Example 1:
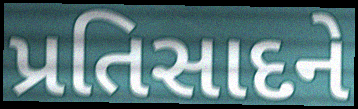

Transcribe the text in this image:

પ્રતિસાદને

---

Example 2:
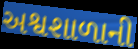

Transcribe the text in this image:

અશ્વશાળાની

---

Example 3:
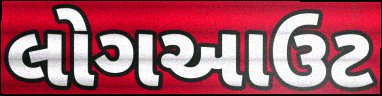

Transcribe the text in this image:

લોગઆઉટ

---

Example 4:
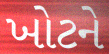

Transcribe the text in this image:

ખોટને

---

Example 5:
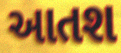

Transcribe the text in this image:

આતશ